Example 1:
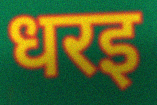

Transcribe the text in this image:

धरइ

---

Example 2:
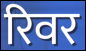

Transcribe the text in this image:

रिवर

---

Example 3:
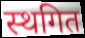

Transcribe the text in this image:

स्थगित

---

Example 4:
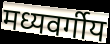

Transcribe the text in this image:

मध्यवर्गीय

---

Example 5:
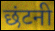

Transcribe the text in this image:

छंटनी